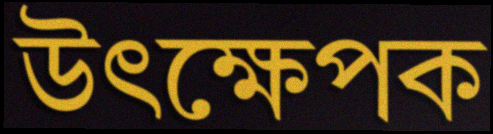
উৎক্ষেপক